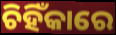
ଚିହିଁକାରେ